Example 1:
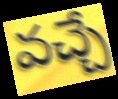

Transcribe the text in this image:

వచ్చే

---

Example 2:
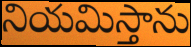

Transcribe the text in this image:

నియమిస్తాను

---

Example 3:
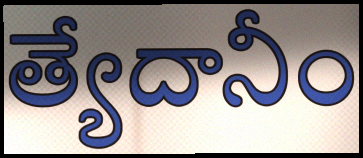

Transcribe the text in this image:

త్యేదానీం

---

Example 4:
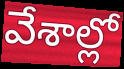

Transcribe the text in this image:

వేశాల్లో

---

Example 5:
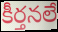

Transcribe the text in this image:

కీర్తనలే